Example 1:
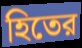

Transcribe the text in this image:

হিতের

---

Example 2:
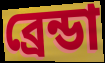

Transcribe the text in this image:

ব্রেন্ডা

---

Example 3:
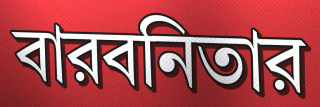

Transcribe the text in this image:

বারবনিতার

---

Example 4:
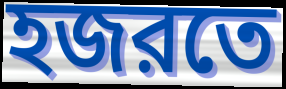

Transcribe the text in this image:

হজরতে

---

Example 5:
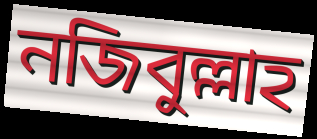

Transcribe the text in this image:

নজিবুল্লাহ